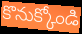
కొనుక్కోండి